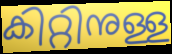
കിറ്റിനുള്ള